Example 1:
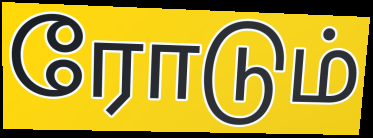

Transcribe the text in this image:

ரோடும்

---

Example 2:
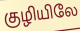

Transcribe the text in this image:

குழியிலே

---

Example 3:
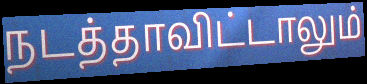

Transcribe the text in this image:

நடத்தாவிட்டாலும்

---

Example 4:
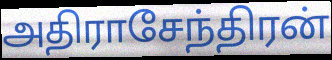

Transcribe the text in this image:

அதிராசேந்திரன்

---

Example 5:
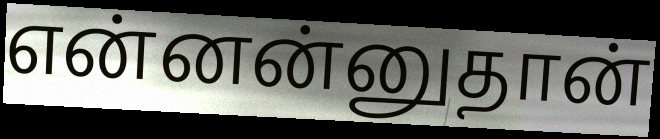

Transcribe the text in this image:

என்னன்னுதான்